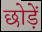
छोड़ें